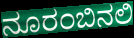
ನೂರಂಬಿನಲಿ